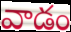
వాడం